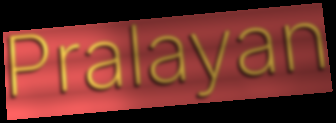
Pralayan